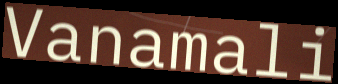
Vanamali